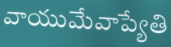
వాయుమేవాప్యేతి